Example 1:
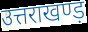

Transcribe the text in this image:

उत्तराखण्ड़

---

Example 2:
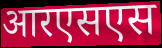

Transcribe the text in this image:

आरएसएस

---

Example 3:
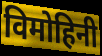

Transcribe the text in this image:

विमोहिनी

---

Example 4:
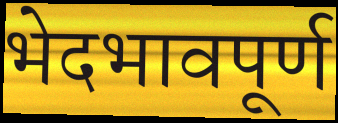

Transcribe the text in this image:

भेदभावपूर्ण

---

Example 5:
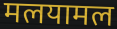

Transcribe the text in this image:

मलयामल